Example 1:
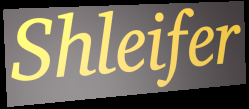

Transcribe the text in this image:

Shleifer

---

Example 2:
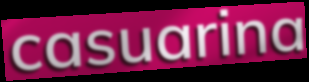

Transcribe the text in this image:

casuarina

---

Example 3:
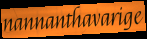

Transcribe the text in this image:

nannanthavarige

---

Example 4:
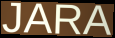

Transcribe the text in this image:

JARA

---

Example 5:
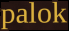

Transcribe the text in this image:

palok